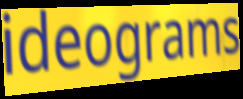
ideograms